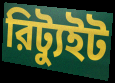
রিট্যুইট